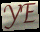
YE